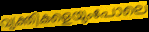
വ്യക്തികളെയുംപോലെ